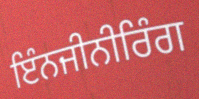
ਇੰਨਜੀਨੀਰਿੰਗ